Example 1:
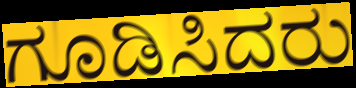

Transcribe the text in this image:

ಗೂಡಿಸಿದರು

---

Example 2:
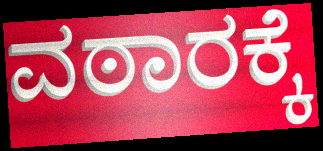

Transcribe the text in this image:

ವಠಾರಕ್ಕೆ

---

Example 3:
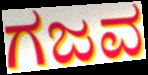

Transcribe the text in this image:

ಗಜವ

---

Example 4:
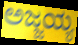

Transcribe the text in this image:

ಅಜ್ಜಯ್ಯ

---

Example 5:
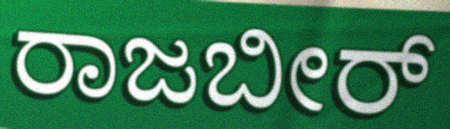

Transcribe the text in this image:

ರಾಜಬೀರ್